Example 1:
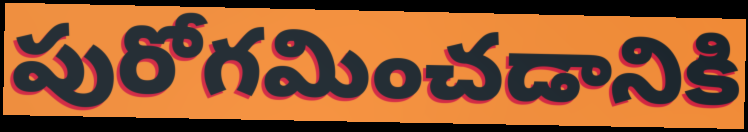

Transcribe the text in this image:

పురోగమించడానికి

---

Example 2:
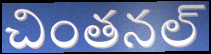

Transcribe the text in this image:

చింతనల్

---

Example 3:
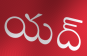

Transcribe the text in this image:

యద్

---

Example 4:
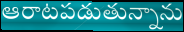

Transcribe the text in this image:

ఆరాటపడుతున్నాను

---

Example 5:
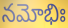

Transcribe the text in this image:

నమోభిః